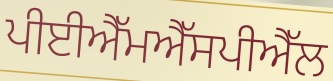
ਪੀਈਐੱਮਐੱਸਪੀਐੱਲ